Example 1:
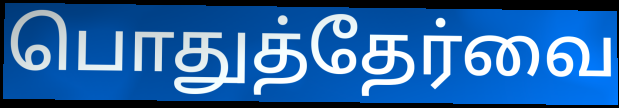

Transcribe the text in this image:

பொதுத்தேர்வை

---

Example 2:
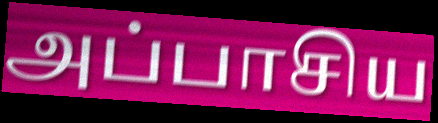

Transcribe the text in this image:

அப்பாசிய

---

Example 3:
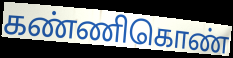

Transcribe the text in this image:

கண்ணிகொண்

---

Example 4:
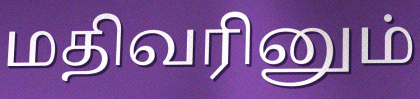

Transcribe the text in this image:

மதிவரினும்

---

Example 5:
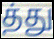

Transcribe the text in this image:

த்து